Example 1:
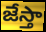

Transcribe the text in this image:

జేస్తా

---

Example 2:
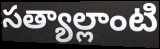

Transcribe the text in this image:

సత్యాల్లాంటి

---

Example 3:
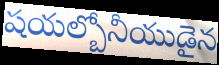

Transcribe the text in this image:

షయల్బోనీయుడైన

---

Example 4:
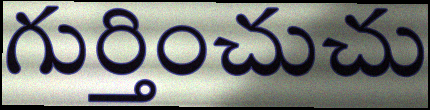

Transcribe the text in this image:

గుర్తించుచు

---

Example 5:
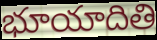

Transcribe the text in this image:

భూయాదితి